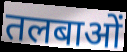
तलबाओं